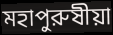
মহাপুৰুষীয়া